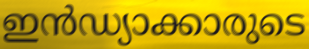
ഇൻഡ്യാക്കാരുടെ